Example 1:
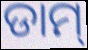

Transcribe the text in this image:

ଡାମ୍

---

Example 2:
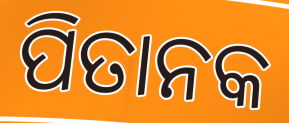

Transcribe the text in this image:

ପିତାନକ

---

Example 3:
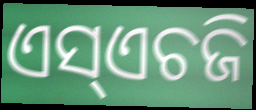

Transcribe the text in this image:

ଏସ୍ଏଚଜି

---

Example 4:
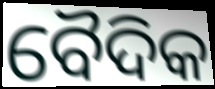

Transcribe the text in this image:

ବୈଦିକ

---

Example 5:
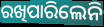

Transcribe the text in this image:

ରଖିପାରିଲେନି